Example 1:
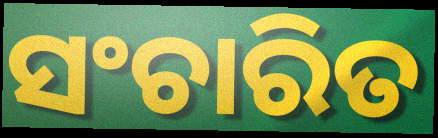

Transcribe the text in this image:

ସଂଚାରିତ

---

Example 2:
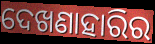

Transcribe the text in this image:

ଦେଖଣାହାରିର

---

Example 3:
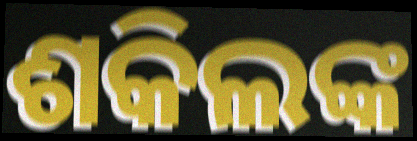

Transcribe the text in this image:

ଶକିଲଙ୍କ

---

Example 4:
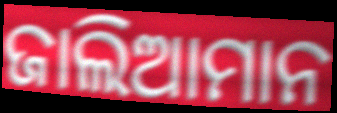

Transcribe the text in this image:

ଜାଲିଆମାନ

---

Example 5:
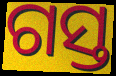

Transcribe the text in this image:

ଗସ୍ତ